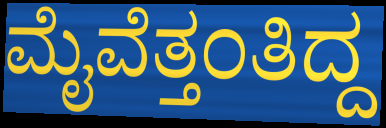
ಮೈವೆತ್ತಂತಿದ್ದ